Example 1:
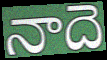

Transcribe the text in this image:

నాదె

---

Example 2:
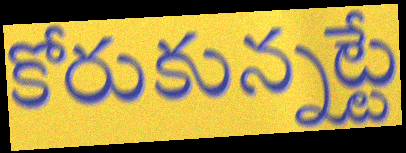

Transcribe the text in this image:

కోరుకున్నట్టే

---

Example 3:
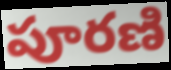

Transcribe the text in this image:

పూరణి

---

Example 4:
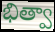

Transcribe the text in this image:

భిత్వా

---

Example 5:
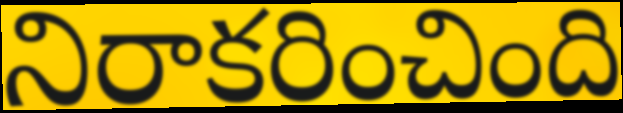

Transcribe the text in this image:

నిరాకరించింది